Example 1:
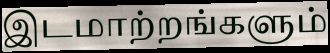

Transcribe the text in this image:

இடமாற்றங்களும்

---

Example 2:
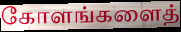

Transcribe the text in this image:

கோளங்களைத்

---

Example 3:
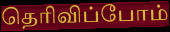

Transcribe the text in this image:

தெரிவிப்போம்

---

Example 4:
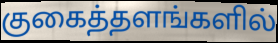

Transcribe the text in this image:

குகைத்தளங்களில்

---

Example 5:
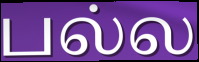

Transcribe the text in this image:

பல்ல